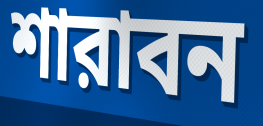
শারাবন